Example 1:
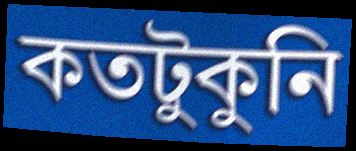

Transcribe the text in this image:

কতটুকুনি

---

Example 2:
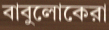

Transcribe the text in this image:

বাবুলোকেরা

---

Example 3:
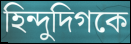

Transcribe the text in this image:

হিন্দুদিগকে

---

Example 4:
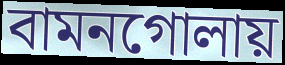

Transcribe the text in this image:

বামনগোলায়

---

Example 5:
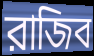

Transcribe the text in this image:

রাজিব